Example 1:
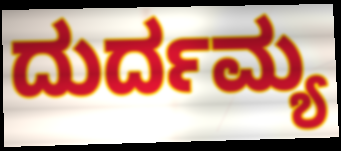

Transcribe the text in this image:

ದುರ್ದಮ್ಯ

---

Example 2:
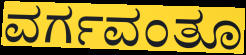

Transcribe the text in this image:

ವರ್ಗವಂತೂ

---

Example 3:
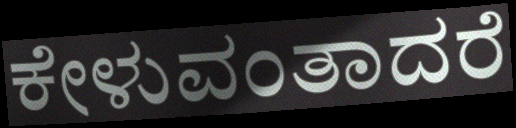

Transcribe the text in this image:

ಕೇಳುವಂತಾದರೆ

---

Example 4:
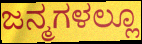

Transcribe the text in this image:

ಜನ್ಮಗಳಲ್ಲೂ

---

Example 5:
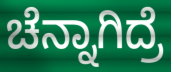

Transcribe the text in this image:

ಚೆನ್ನಾಗಿದ್ರೆ